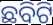
ଛବିଟି